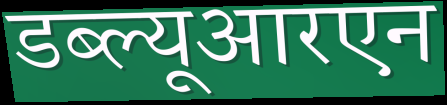
डब्ल्यूआरएन